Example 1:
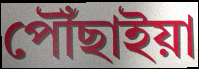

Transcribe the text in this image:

পৌঁছাইয়া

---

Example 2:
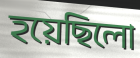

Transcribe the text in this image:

হয়েছিলো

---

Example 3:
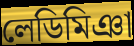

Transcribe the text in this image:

লেডিমিঞা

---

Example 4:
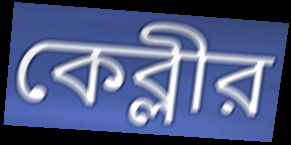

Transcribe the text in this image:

কেব্লীর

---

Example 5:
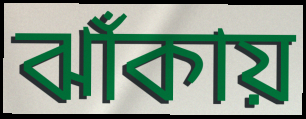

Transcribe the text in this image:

ঝাঁকায়